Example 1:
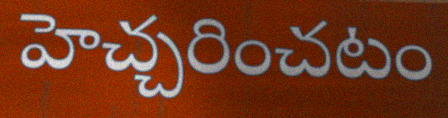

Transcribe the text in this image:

హెచ్చరించటం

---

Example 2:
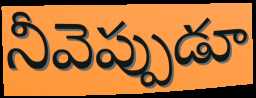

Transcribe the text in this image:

నీవెప్పుడూ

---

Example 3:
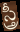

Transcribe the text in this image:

స్త్రీ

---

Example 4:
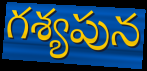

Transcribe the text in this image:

గశ్యపున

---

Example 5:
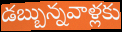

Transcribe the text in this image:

డబ్బున్నవాళ్లకు